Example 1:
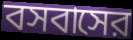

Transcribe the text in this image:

বসবাসের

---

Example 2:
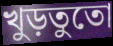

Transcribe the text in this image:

খুড়তুতো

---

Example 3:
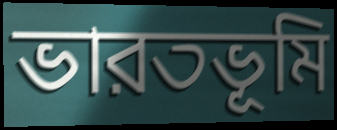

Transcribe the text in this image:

ভারতভূমি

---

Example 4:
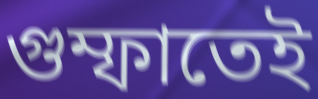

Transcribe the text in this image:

গুম্ফাতেই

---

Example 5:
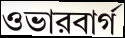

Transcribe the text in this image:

ওভারবার্গ